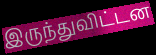
இருந்துவிட்டன